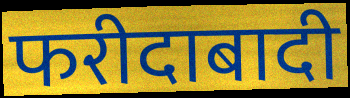
फरीदाबादी